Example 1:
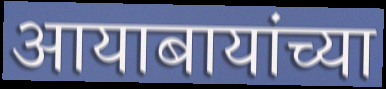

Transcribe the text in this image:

आयाबायांच्या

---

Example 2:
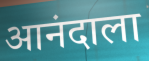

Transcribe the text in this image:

आनंदाला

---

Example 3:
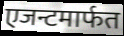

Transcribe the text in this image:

एजन्टमार्फत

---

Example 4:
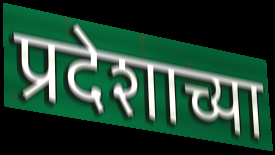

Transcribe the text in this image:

प्रदेशाच्या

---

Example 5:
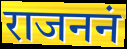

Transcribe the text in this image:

राजननं